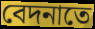
বেদনাতে